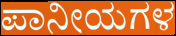
ಪಾನೀಯಗಳ